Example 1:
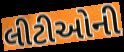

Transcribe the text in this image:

લીટીઓની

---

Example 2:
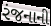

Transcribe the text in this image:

રંજનાની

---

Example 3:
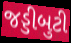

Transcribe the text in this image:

જડ્ડીબુટી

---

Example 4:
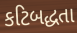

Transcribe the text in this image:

કટિબદ્ધતા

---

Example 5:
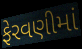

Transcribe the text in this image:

ફેરવણીમાં